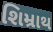
શિમ્રાથ